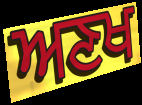
ਅਣਖ